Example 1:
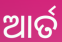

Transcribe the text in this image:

ଆର୍ତ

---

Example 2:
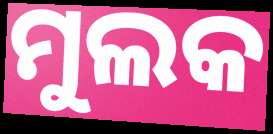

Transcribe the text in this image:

ମୁଲକ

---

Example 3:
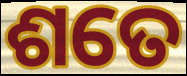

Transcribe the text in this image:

ଶତେ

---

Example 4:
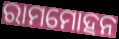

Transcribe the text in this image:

ରାମମୋହନ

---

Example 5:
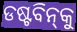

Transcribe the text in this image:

ଡଷ୍ଟବିନ୍‌କୁ